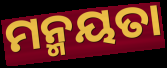
ମନ୍ମୟତା